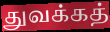
துவக்கத்